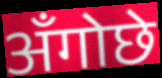
अँगोछे